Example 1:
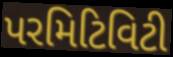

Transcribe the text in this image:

પરમિટિવિટી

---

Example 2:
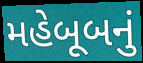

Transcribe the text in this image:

મહેબૂબનું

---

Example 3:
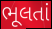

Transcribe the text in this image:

ભૂલતાં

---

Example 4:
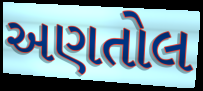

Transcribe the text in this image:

અણતોલ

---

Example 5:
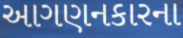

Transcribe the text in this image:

આગણનકારના